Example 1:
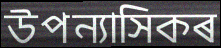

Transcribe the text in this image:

উপন্যাসিকৰ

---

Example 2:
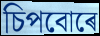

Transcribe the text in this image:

চিপবোৰে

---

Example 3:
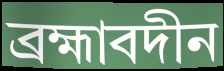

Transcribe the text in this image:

ব্ৰহ্মাবদীন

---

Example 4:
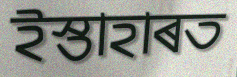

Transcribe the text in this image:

ইস্তাহাৰত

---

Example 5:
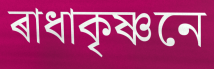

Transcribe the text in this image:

ৰাধাকৃষ্ণনে